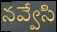
నవ్వేసి